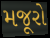
મજૂરો